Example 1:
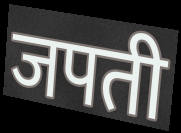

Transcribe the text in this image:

जपती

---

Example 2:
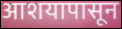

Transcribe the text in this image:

आशयापासून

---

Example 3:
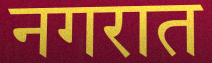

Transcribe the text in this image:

नगरात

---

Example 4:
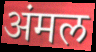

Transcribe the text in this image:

अंमल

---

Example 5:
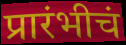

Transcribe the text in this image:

प्रारंभीचं